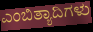
ಎಂಬಿತ್ಯಾದಿಗಳು